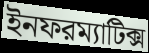
ইনফরম্যাটিক্স